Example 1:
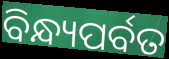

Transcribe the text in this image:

ବିନ୍ଧ୍ୟପର୍ବତ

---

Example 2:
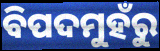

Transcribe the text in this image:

ବିପଦମୁହଁରୁ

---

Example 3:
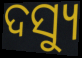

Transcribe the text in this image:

ଦସ୍ୟୁ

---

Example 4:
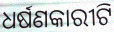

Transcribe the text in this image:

ଧର୍ଷଣକାରୀଟି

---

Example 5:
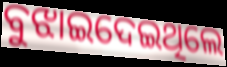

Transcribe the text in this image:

ବୁଝାଇଦେଇଥିଲେ